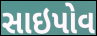
સાઇપોવ